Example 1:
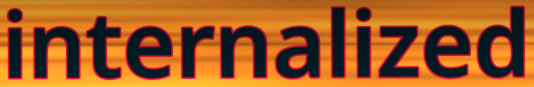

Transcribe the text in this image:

internalized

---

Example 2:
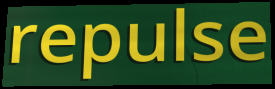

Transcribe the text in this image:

repulse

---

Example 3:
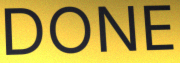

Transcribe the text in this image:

DONE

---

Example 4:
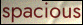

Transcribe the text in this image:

spacious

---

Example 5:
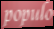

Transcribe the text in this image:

populo